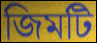
জিমটি